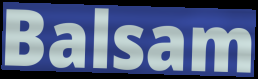
Balsam